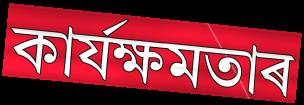
কাৰ্যক্ষমতাৰ